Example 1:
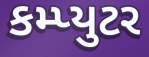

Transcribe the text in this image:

કમ્પ્યુટર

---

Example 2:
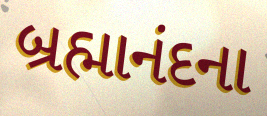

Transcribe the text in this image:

બ્રહ્માનંદના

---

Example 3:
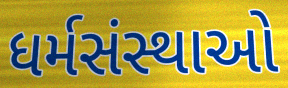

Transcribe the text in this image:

ધર્મસંસ્થાઓ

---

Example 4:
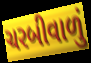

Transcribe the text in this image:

ચરબીવાળું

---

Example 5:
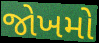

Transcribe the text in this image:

જોખમો